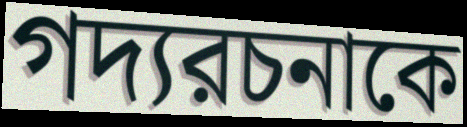
গদ্যরচনাকে